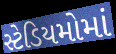
સ્ટેડિયમોમાં